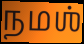
நமஶ்